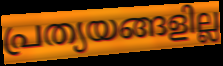
പ്രത്യയങ്ങളില്ല